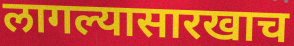
लागल्यासारखाच